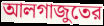
আলগাজুতের